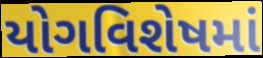
યોગવિશેષમાં